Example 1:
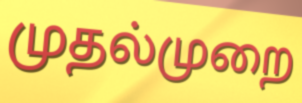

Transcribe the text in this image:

முதல்முறை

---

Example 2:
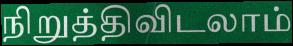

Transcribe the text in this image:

நிறுத்திவிடலாம்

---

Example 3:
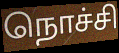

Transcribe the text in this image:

நொச்சி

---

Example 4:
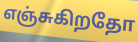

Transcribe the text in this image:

எஞ்சுகிறதோ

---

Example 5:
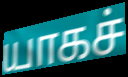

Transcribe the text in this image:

யாகச்